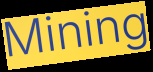
Mining